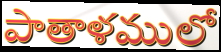
పాతాళములో